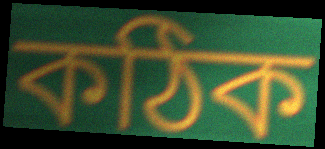
কঠিক